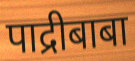
पाद्रीबाबा